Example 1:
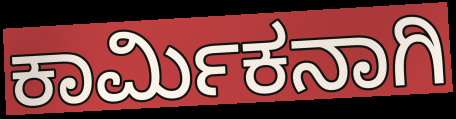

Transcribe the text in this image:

ಕಾರ್ಮಿಕನಾಗಿ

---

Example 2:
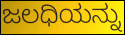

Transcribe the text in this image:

ಜಲಧಿಯನ್ನು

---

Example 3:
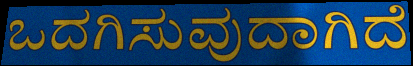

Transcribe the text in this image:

ಒದಗಿಸುವುದಾಗಿದೆ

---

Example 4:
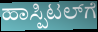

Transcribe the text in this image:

ಹಾಸ್ಪಿಟಲ್‌ಗೆ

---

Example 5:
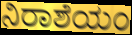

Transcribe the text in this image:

ನಿರಾಶೆಯಂ